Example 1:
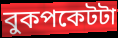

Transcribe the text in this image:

বুকপকেটটা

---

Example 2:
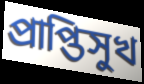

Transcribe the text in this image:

প্রাপ্তিসুখ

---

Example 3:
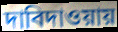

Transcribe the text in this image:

দাবিদাওয়ায়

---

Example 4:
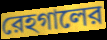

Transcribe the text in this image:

রেহগালের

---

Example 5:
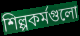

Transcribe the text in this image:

শিল্পকর্মগুলো